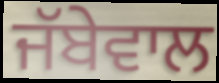
ਜੱਬੇਵਾਲ